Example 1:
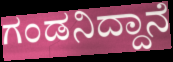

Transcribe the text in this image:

ಗಂಡನಿದ್ದಾನೆ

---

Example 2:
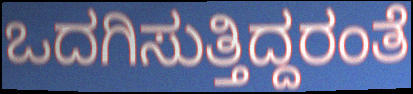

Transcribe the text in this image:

ಒದಗಿಸುತ್ತಿದ್ದರಂತೆ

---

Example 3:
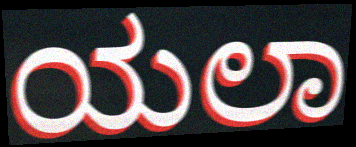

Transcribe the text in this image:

ಯಲಾ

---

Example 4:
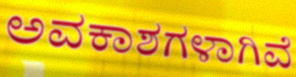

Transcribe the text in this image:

ಅವಕಾಶಗಳಾಗಿವೆ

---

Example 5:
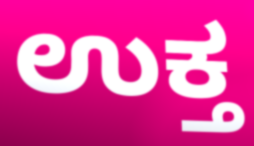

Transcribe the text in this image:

ಉಕ್ತ